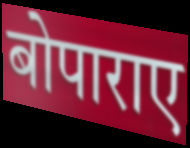
बोपाराए